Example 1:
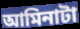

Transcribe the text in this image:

আমিনাটা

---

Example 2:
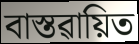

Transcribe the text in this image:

বাস্তৱায়িত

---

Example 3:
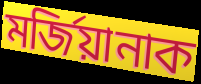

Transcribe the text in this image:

মৰ্জিয়ানাক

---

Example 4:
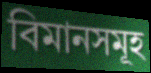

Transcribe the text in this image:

বিমানসমূহ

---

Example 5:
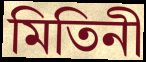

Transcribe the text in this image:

মিতিনী